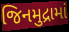
જિનમુદ્રામાં